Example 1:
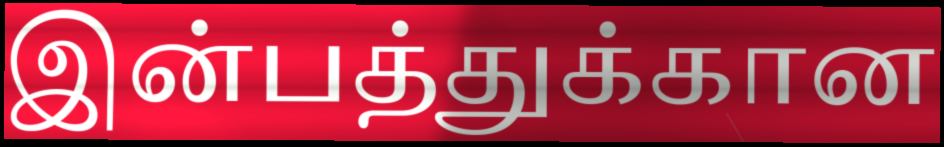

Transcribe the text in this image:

இன்பத்துக்கான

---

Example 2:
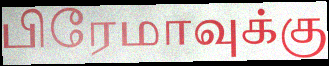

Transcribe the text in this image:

பிரேமாவுக்கு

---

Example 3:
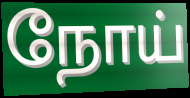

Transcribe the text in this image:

நோய்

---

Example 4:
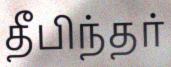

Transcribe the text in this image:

தீபிந்தர்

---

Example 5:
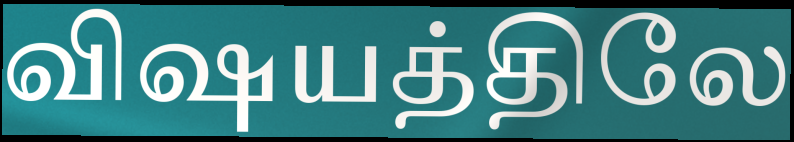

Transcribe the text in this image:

விஷயத்திலே